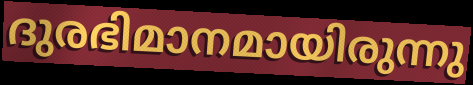
ദുരഭിമാനമായിരുന്നു